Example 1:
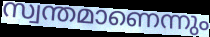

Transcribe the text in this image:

സ്വന്തമാണെന്നും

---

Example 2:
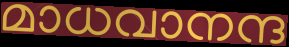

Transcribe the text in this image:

മാധവാനന്ദ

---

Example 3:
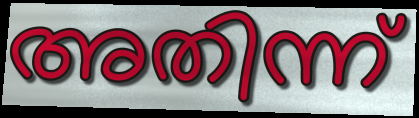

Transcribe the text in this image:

അതിന്ന്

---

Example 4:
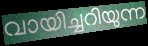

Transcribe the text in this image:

വായിച്ചറിയുന്ന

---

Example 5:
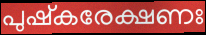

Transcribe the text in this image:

പുഷ്കരേക്ഷണഃ